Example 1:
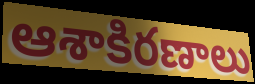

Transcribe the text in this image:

ఆశాకిరణాలు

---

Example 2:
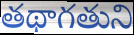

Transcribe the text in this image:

తథాగతుని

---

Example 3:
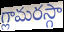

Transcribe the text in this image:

గ్లామరస్గా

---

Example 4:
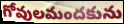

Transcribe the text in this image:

గోవులమందకును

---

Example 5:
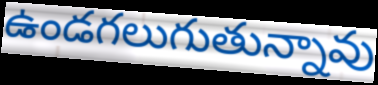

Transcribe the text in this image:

ఉండగలుగుతున్నావు